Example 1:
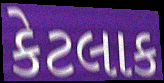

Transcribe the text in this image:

કેટલાક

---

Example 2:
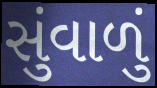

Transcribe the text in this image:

સુંવાળું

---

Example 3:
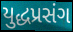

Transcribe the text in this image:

યુદ્ધપ્રસંગ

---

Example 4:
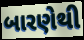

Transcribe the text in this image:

બારણેથી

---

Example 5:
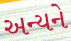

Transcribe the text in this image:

અન્યને